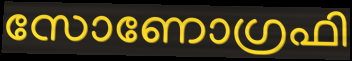
സോണോഗ്രഫി